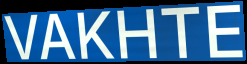
VAKHTE